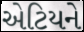
એટિયને